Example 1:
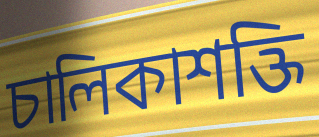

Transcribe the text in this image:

চালিকাশক্তি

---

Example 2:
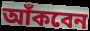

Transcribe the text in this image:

আঁকবেন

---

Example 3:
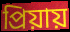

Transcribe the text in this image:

প্রিয়ায়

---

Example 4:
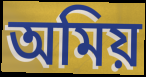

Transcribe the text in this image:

অমিয়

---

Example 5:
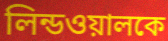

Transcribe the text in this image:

লিন্ডওয়ালকে